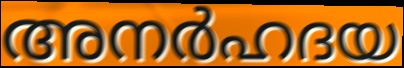
അനർഹദയ